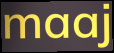
maaj